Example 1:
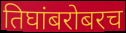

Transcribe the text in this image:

तिघांबरोबरच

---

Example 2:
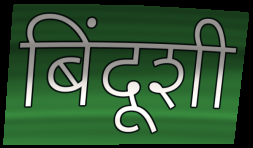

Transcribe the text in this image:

बिंदूशी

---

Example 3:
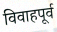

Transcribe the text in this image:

विवाहपूर्व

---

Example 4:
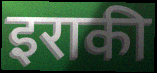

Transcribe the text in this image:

इराकी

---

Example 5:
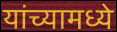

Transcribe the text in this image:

यांच्यामध्ये